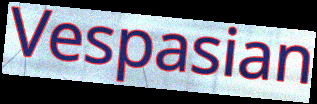
Vespasian